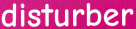
disturber